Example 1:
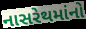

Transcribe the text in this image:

નાસરેથમાંનો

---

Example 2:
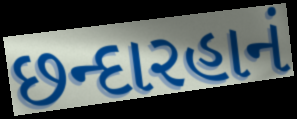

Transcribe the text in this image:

છન્દારહાનં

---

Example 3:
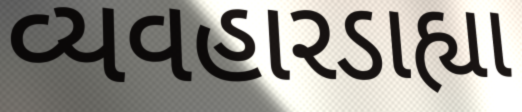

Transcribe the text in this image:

વ્યવહારડાહ્યા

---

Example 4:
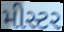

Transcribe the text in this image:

મીસ્ટર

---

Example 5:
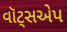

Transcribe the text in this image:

વૉટ્સએપ